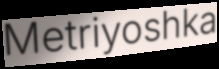
Metriyoshka